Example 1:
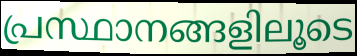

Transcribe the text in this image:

പ്രസ്ഥാനങ്ങളിലൂടെ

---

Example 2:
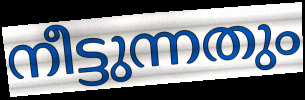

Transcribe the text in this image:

നീട്ടുന്നതും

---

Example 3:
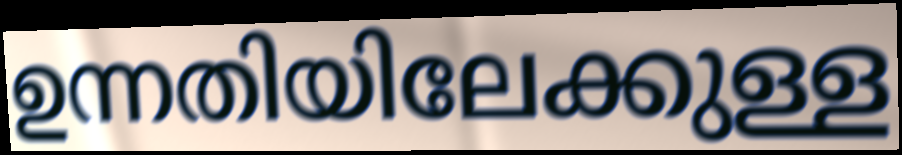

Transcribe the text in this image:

ഉന്നതിയിലേക്കുള്ള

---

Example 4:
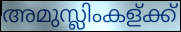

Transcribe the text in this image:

അമുസ്ലിംകള്ക്ക്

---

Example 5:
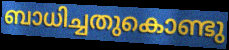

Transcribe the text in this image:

ബാധിച്ചതുകൊണ്ടു